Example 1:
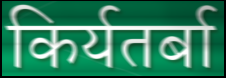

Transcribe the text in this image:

किर्यतर्बा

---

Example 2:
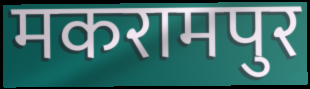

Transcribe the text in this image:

मकरामपुर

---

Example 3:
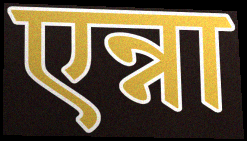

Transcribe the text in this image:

एन्ना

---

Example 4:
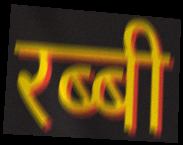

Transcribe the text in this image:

रब्बी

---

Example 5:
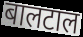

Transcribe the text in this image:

बालटाल